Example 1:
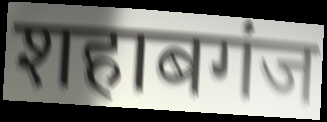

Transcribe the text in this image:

शहाबगंज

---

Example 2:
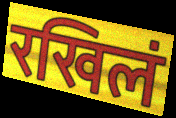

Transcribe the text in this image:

रखिलं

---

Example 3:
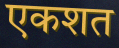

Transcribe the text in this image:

एकशत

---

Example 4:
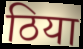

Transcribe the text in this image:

ठिया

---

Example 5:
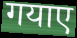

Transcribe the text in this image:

गयाए